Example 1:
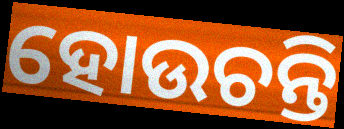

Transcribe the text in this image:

ହୋଉଚନ୍ତି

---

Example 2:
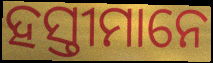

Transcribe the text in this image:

ହସ୍ତୀମାନେ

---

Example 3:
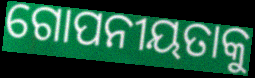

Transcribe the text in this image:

ଗୋପନୀୟତାକୁ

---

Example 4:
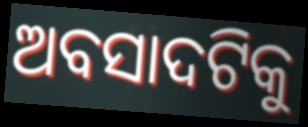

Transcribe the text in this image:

ଅବସାଦଟିକୁ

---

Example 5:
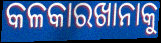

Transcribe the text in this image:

କଳକାରଖାନାକୁ